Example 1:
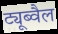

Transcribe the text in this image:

ट्यूब्वैल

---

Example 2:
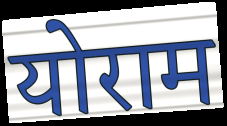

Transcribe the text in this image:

योराम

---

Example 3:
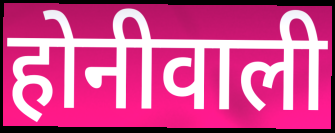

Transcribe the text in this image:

होनीवाली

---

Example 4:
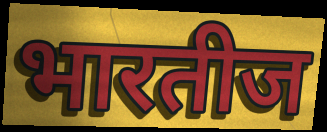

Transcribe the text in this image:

भारतीज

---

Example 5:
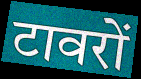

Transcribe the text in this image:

टावरों